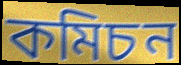
কমিচন